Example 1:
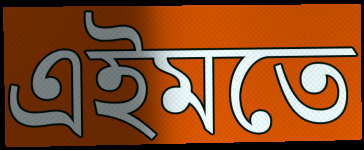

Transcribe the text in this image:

এইমতে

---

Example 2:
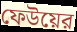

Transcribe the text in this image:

ফেউয়ের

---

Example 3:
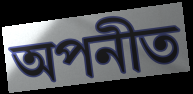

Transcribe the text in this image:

অপনীত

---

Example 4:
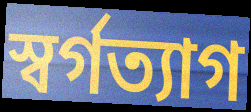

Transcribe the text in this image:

স্বর্গত্যাগ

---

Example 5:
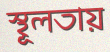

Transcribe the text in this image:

স্থূলতায়